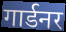
गार्डनर